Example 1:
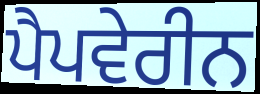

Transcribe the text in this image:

ਪੈਪਵੇਰੀਨ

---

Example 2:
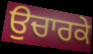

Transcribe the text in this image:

ਉਚਾਰਕੇ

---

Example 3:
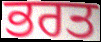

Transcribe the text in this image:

ਭਰਤ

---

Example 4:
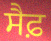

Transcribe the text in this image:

ਸੈਫ਼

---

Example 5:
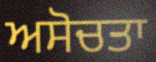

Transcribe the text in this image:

ਅਸੋਚਤਾ